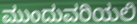
ಮುಂದುವರಿಯಲಿ